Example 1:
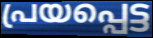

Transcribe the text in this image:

പ്രയപ്പെട്ട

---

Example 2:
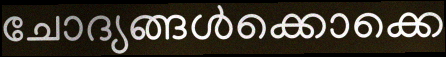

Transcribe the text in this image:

ചോദ്യങ്ങൾക്കൊക്കെ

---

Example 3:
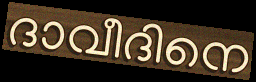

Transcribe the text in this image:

ദാവീദിനെ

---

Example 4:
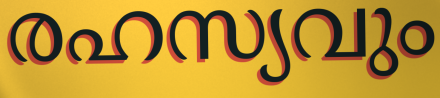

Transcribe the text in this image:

രഹസ്യവും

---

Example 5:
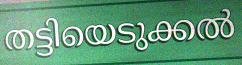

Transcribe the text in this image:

തട്ടിയെടുക്കൽ